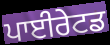
ਪਾਈਰੇਟਡ